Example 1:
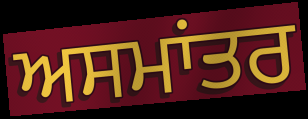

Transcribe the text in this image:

ਅਸਮਾਂਤਰ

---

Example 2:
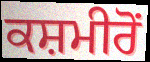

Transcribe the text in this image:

ਕਸ਼ਮੀਰੋਂ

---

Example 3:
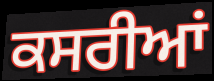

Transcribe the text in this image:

ਕਸਰੀਆਂ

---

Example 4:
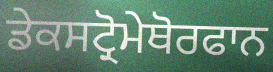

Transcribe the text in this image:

ਡੇਕਸਟ੍ਰੋਮੇਥੋਰਫਾਨ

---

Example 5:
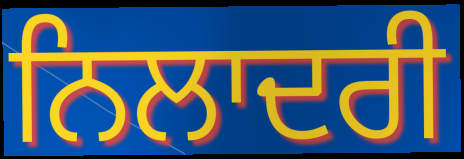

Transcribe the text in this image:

ਨਿਲਾਦਰੀ